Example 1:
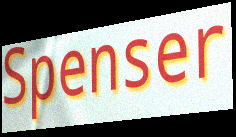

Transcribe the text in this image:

Spenser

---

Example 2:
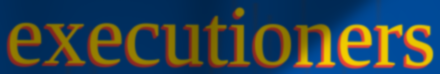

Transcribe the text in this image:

executioners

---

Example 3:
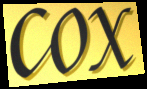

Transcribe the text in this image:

cox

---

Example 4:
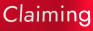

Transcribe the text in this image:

Claiming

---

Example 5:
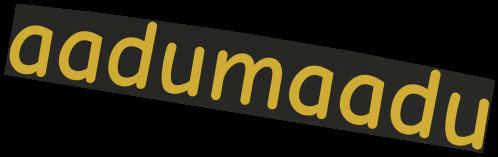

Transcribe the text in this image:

aadumaadu